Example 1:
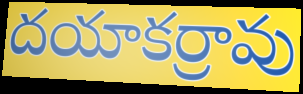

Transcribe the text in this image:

దయాకర్రావు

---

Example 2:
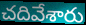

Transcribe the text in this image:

చదివేశారు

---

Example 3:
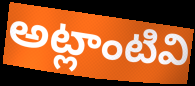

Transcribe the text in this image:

అట్లాంటివి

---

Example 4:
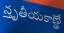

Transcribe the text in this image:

న్తృతీయకాణ్డే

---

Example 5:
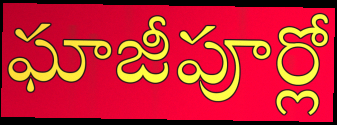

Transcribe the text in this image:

ఘాజీపూర్లో